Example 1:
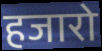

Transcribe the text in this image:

हजारो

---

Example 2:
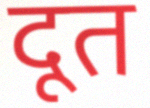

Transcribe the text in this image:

दूत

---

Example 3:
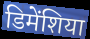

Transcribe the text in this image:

डिमेंशिया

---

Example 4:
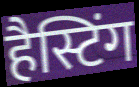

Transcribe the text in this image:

हैस्टिंग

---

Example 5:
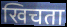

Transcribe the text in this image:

खिचता